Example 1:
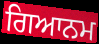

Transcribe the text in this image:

ਗਿਆਨਮ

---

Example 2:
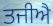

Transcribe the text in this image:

ਤਜੀਐ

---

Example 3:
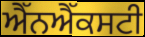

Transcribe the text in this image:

ਐੱਨਐੱਕਸਟੀ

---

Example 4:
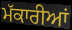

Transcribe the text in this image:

ਮੱਕਾਰੀਆਂ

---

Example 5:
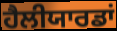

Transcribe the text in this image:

ਹੈਲੀਯਾਰਡਾਂ